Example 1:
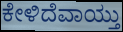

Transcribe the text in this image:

ಕೇಳಿದೆವಾಯ್ತು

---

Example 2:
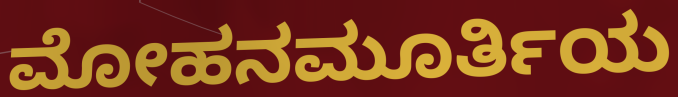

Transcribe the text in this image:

ಮೋಹನಮೂರ್ತಿಯ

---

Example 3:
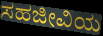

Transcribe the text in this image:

ಸಹಜೀವಿಯ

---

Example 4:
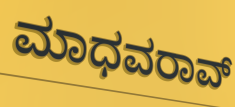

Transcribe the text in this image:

ಮಾಧವರಾವ್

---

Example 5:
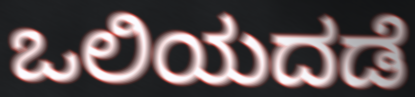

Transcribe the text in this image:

ಒಲಿಯದಡೆ